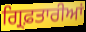
ਗ੍ਰਿਫ਼ਤਾਰੀਆਂ